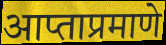
आप्ताप्रमाणे